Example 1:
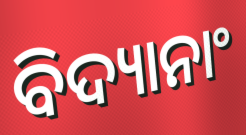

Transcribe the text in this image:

ବିଦ୍ୟାନାଂ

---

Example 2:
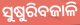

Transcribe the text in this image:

ସୁଷୁରିବଜାଳି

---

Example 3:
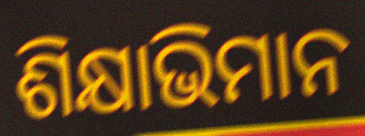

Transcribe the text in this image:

ଶିକ୍ଷାଭିମାନ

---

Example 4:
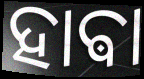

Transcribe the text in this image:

ହାଵା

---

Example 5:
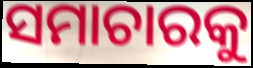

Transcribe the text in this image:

ସମାଚାରକୁ